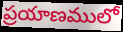
ప్రయాణములో